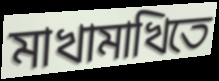
মাখামাখিতে